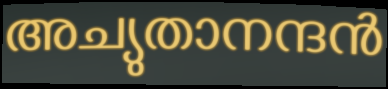
അച്യുതാനന്ദൻ